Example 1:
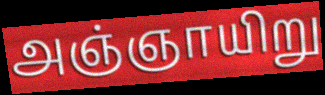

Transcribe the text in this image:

அஞ்ஞாயிறு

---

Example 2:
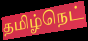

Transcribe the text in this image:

தமிழ்நெட்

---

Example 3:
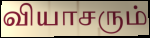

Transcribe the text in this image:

வியாசரும்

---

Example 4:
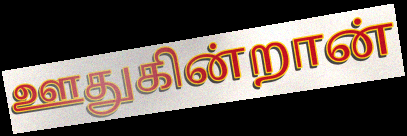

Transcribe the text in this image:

ஊதுகின்றான்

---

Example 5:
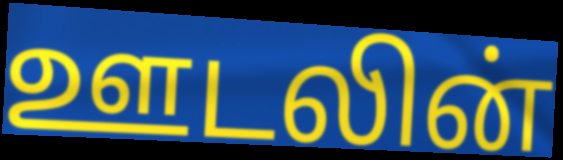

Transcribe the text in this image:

ஊடலின்